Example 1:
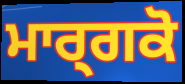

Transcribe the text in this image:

ਮਾਰ੍ਗਕੋ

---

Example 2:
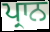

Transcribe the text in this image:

ਪ੍ਰਾਨ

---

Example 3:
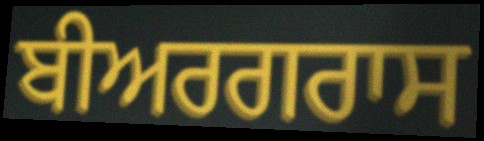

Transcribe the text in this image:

ਬੀਅਰਗਰਾਸ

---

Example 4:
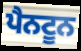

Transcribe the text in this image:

ਪੈਨਟੂਨ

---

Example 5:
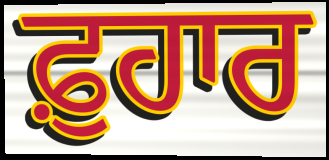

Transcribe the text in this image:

ਫ਼ੁਹਾਰ